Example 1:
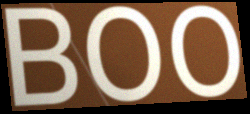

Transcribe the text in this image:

BOO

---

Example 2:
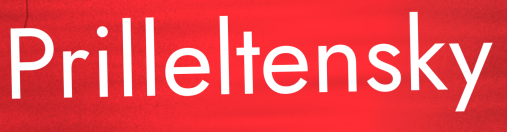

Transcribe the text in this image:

Prilleltensky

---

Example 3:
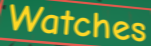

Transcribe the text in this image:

Watches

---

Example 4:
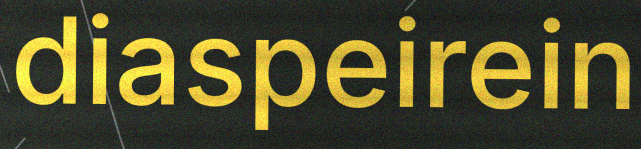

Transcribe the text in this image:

diaspeirein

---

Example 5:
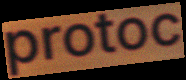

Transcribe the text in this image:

protoc